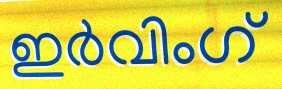
ഇർവിംഗ്